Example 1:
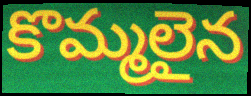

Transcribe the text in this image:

కొమ్మలైన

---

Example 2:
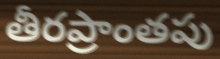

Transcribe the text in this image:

తీరప్రాంతపు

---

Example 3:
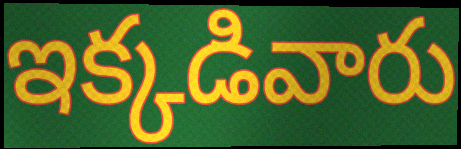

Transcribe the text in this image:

ఇక్కడివారు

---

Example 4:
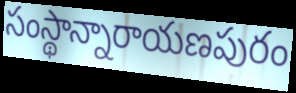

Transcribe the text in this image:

సంస్థాన్నారాయణపురం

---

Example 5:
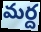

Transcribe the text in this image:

మర్ద